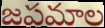
జపమాల